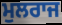
ਮੁਲਰਾਜ